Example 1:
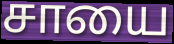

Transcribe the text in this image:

சாயை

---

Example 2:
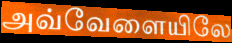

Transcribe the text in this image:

அவ்வேளையிலே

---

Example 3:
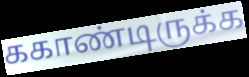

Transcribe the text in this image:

ககாண்டிருக்க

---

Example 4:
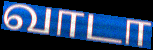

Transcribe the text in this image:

வாடா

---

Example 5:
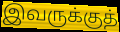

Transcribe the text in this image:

இவருக்குத்